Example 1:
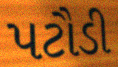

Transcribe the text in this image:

પટૌડી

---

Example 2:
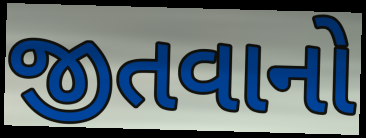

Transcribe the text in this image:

જીતવાનો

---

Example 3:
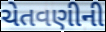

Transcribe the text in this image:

ચેતવણીની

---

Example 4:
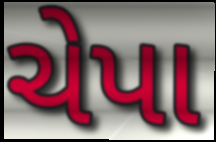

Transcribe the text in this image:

ચેપા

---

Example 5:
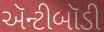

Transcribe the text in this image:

ઍન્ટીબૉડી